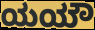
ಯಯೌ